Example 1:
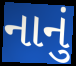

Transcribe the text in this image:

નાનું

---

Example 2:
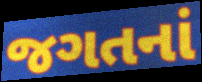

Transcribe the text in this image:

જગતનાં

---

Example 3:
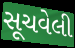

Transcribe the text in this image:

સૂચવેલી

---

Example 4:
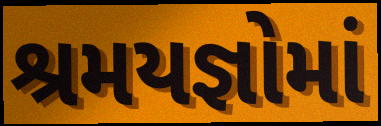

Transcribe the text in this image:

શ્રમયજ્ઞોમાં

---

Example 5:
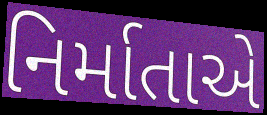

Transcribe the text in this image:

નિર્માતાએ